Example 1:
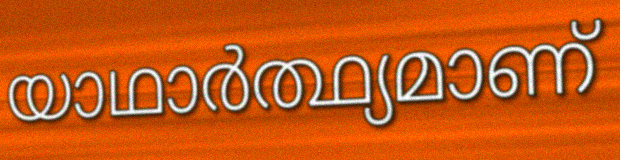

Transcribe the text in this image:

യാഥാർത്ഥ്യമാണ്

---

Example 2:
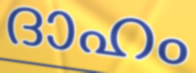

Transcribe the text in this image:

ദാഹം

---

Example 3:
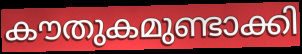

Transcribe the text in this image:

കൗതുകമുണ്ടാക്കി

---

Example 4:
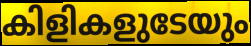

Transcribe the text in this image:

കിളികളുടേയും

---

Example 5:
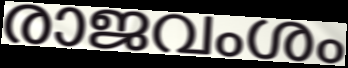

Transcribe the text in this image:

രാജവംശം